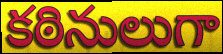
కఠినులుగా